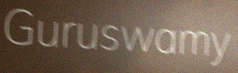
Guruswamy